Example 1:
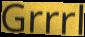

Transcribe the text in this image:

Grrrl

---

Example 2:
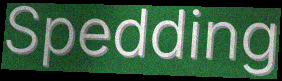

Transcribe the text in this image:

Spedding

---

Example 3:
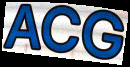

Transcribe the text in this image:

ACG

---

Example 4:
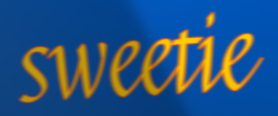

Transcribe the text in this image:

sweetie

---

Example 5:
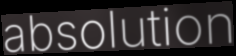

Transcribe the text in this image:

absolution